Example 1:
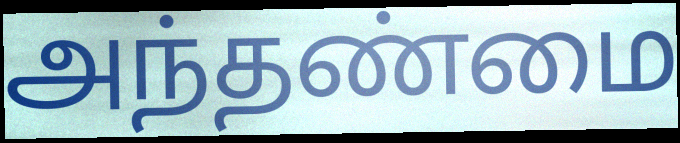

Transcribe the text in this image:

அந்தண்மை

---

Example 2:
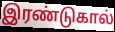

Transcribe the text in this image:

இரண்டுகால்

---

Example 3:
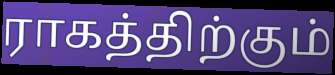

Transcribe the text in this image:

ராகத்திற்கும்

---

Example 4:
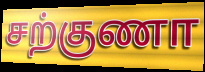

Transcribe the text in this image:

சற்குணா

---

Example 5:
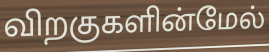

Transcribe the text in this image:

விறகுகளின்மேல்